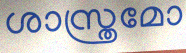
ശാസ്ത്രമോ